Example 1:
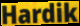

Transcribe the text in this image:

Hardik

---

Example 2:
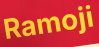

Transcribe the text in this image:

Ramoji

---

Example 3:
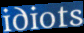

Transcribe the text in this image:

idiots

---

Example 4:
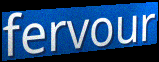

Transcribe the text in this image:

fervour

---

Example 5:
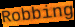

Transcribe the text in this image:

Robbing